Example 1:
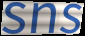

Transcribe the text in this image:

sns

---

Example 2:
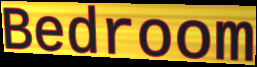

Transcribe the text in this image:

Bedroom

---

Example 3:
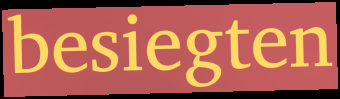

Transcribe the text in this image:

besiegten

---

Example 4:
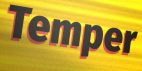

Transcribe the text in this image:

Temper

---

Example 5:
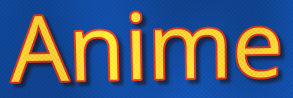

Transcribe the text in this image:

Anime